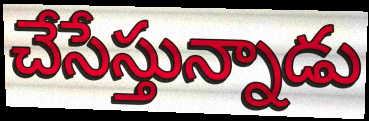
చేసేస్తున్నాడు